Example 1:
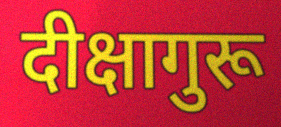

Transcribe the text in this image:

दीक्षागुरू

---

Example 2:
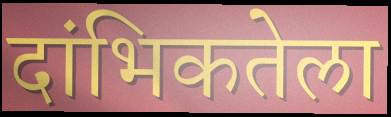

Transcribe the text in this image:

दांभिकतेला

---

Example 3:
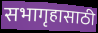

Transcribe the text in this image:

सभागृहासाठी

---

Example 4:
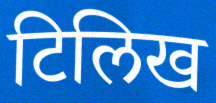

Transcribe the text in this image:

टिलिख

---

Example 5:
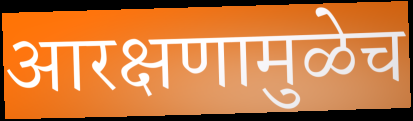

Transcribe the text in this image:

आरक्षणामुळेच